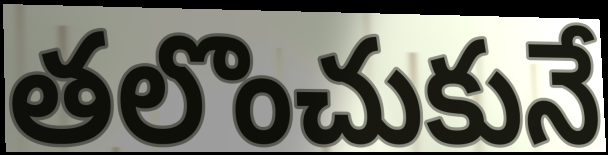
తలొంచుకునే